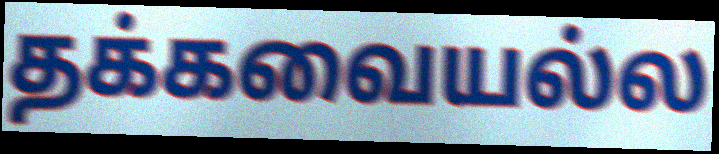
தக்கவையல்ல